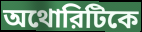
অথোরিটিকে